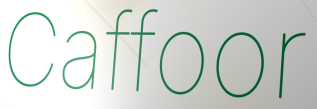
Caffoor